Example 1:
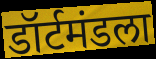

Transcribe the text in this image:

डॉर्टमंडला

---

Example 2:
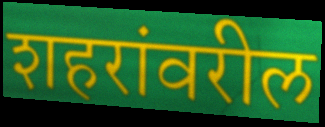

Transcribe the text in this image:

शहरांवरील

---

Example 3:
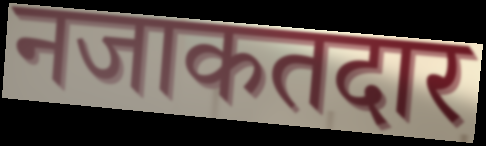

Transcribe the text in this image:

नजाकतदार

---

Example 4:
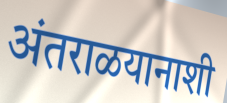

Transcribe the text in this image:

अंतराळयानाशी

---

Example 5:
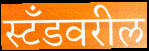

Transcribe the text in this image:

स्टँडवरील